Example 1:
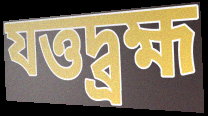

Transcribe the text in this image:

যত্তদ্ব্রহ্ম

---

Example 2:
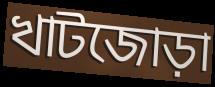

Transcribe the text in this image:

খাটজোড়া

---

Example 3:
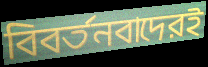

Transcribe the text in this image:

বিবর্তনবাদেরই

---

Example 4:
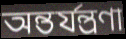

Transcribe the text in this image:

অন্তর্যন্ত্রণা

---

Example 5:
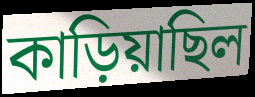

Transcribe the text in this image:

কাড়িয়াছিল